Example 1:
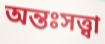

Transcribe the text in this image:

অন্তঃসত্ত্বা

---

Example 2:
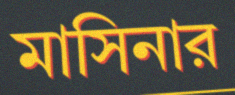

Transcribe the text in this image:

মাসিনার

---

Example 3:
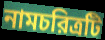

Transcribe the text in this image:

নামচরিত্রটি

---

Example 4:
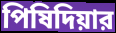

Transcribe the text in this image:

পিষিদিয়ার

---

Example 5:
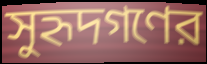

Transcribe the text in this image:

সুহৃদগণের